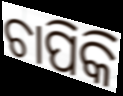
ଚାପିକି